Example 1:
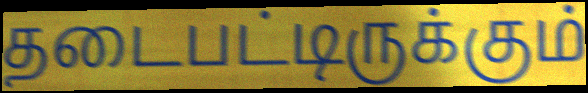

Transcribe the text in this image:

தடைபட்டிருக்கும்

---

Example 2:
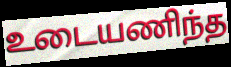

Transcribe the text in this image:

உடையணிந்த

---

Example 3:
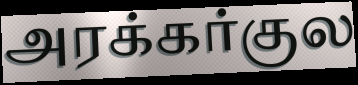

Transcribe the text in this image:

அரக்கர்குல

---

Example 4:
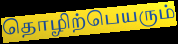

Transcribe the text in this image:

தொழிற்பெயரும்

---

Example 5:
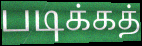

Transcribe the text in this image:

படிக்கத்